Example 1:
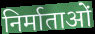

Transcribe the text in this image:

निर्माताओं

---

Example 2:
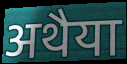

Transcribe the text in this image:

अथैया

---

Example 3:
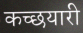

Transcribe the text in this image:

कच्छयारी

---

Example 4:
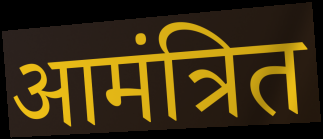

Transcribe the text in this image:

आमंत्रित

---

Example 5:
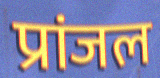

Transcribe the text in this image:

प्रांजल